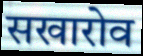
सखारोव